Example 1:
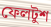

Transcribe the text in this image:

ফেলটুশ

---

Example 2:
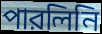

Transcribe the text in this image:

পারলিনি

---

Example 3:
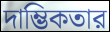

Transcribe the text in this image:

দাম্ভিকতার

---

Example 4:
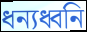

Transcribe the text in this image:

ধন্যধ্বনি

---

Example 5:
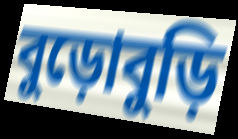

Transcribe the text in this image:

বুড়োবুড়ি